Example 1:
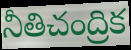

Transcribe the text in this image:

నీతిచంద్రిక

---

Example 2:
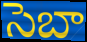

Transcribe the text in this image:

సెబా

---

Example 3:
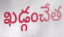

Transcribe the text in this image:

ఖడ్గంచేత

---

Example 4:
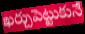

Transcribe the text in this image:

ఖర్చుపెట్టుకునే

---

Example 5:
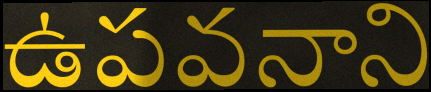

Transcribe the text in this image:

ఉపవనాని